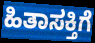
ಹಿತಾಸಕ್ತಿಗೆ